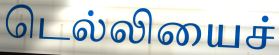
டெல்லியைச்